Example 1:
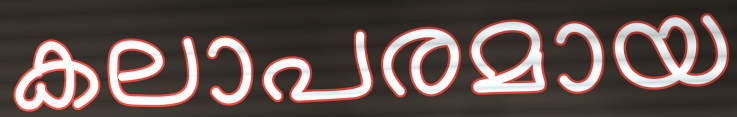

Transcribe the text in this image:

കലാപരമായ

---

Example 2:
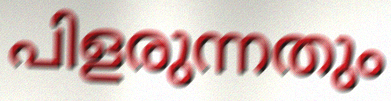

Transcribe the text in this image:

പിളരുന്നതും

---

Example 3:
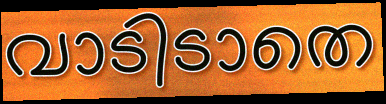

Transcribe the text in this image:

വാടിടാതെ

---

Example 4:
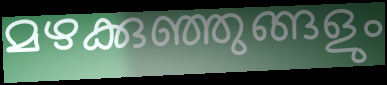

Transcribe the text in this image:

മഴക്കുഞ്ഞുങ്ങളും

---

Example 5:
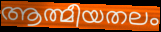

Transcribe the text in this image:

ആത്മീയതലം